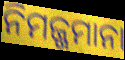
ନିମଜ୍ଜମାନା